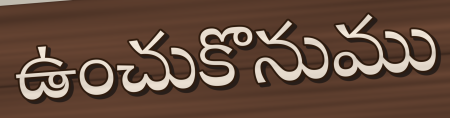
ఉంచుకొనుము